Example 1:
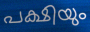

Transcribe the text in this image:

പക്ഷിയും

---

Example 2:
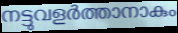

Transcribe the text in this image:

നട്ടുവളർത്താനാകും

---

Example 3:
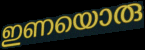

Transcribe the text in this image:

ഇണയൊരു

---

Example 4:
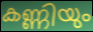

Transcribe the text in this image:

കണ്ണിയും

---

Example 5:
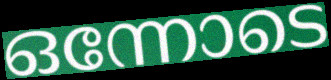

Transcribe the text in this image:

ഒന്നോടെ